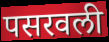
पसरवली